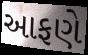
આફણે